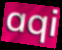
aqi